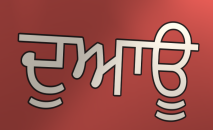
ਦੁਆਊ